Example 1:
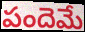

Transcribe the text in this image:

పందెమే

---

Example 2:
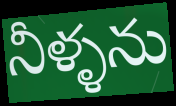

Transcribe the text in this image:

నీళ్ళను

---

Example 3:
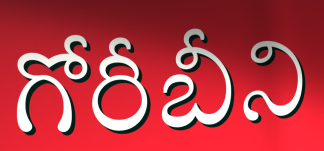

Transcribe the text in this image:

గోరీబీని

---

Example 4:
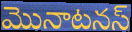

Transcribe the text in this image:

మొనాటనస్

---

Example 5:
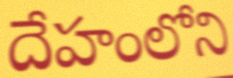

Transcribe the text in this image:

దేహంలోని